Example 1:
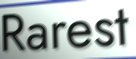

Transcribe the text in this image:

Rarest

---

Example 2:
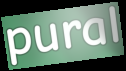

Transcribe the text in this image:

pural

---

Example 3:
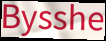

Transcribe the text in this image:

Bysshe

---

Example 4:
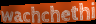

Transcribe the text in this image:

wachchethi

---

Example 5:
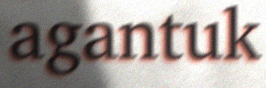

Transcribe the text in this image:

agantuk